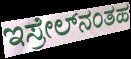
ಇಸ್ರೇಲ್‌ನಂತಹ